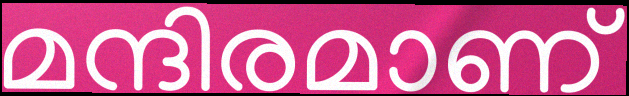
മന്ദിരമാണ്